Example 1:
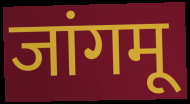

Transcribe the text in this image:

जांगमू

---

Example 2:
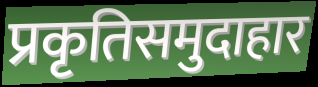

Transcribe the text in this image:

प्रकृतिसमुदाहार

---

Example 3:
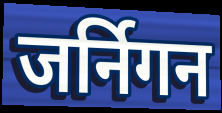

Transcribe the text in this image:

जर्निगन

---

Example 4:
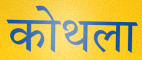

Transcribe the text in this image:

कोथला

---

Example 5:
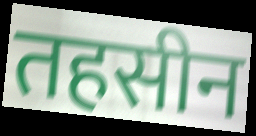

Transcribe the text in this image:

तहसीन